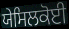
ਯੇਸਿਲਕੋਈ